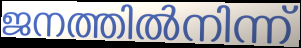
ജനത്തിൽനിന്ന്